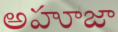
అహూజా